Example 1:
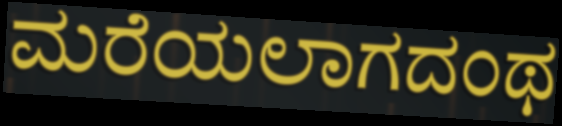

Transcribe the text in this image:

ಮರೆಯಲಾಗದಂಥ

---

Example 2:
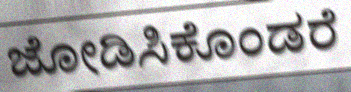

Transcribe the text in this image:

ಜೋಡಿಸಿಕೊಂಡರೆ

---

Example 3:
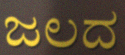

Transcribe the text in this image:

ಜಲದ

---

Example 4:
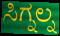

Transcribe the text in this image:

ಸಿಗ್ನಲ್ನ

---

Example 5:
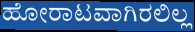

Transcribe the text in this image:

ಹೋರಾಟವಾಗಿರಲಿಲ್ಲ